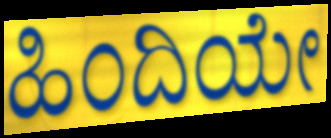
ಹಿಂದಿಯೇ